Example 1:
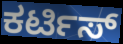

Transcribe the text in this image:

ಕರ್ಟಿಸ್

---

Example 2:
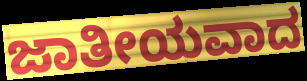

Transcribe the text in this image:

ಜಾತೀಯವಾದ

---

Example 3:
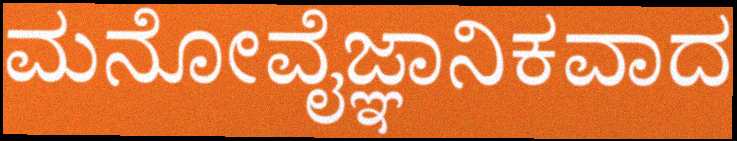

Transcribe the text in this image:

ಮನೋವೈಜ್ಞಾನಿಕವಾದ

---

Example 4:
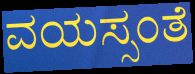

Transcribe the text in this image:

ವಯಸ್ಸಂತೆ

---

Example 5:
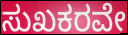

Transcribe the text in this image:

ಸುಖಕರವೇ